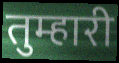
तुम्‍हारी